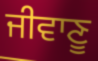
ਜੀਵਾਣੂ